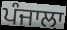
ਪੰਜਾਲਾ